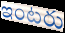
ఇంటరు